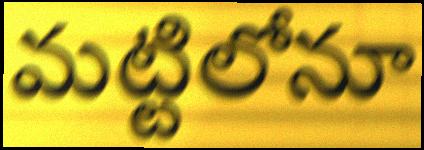
మట్టిలోనూ